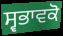
ਸ੍ਵਭਾਵਕੋ